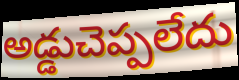
అడ్డుచెప్పలేదు